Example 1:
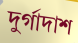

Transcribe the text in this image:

দুর্গাদাশ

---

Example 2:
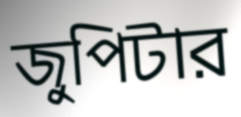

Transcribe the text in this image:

জুপিটার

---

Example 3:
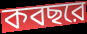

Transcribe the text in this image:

কবছরে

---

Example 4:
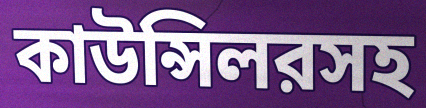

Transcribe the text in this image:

কাউন্সিলরসহ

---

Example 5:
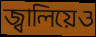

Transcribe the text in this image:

জ্বালিয়েও